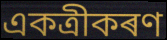
একত্ৰীকৰণ